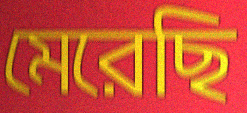
মেরেছি